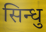
सिन्‍धु